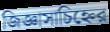
জিজ্ঞাসাচিহ্নের